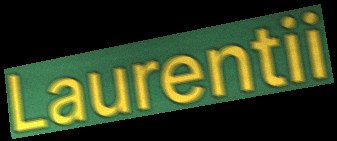
Laurentii